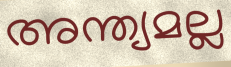
അന്ത്യമല്ല